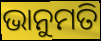
ଭାନୁମତି